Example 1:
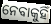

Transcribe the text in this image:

ନେବାକୁହିଁ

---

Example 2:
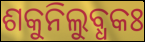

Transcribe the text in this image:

ଶକୁନିଲୁବ୍ଧକଃ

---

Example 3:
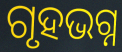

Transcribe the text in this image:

ଗୃହଭଗ୍ନ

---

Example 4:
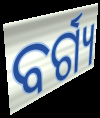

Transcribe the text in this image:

ବର୍ଗ୍ୟ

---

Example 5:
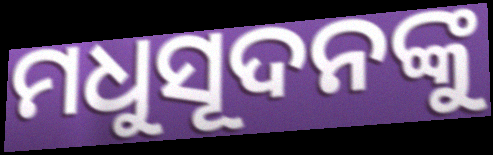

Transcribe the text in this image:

ମଧୁସୂଦନଙ୍କୁ